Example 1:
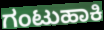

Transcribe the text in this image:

ಗಂಟುಹಾಕಿ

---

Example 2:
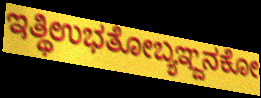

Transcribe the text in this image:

ಇತ್ಥಿಉಭತೋಬ್ಯಞ್ಜನಕೋ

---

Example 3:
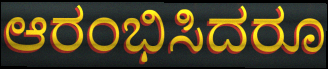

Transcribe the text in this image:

ಆರಂಭಿಸಿದರೂ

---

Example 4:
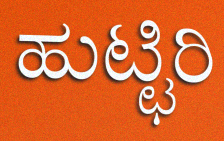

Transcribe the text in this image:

ಹುಟ್ಟಿರಿ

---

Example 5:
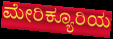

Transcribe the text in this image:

ಮೇರಿಕ್ಯೂರಿಯ